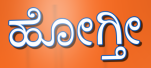
ಹೋಗ್ತೀ